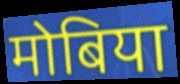
मोबिया